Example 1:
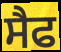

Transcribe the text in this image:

ਸੈਫ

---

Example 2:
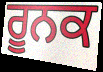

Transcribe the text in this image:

ਰੂਨਕ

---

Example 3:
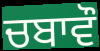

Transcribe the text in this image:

ਚਬਾਵੌ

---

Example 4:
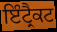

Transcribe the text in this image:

ਇੰਟ੍ਰੈਕਟ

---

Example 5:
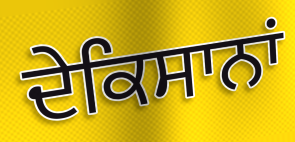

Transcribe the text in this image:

ਦੇਕਿਸਾਨਾਂ